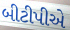
બીટીપીએ